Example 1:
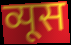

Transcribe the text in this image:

व्यूस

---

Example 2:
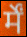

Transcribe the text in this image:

र्में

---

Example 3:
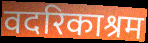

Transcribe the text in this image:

वदरिकाश्रम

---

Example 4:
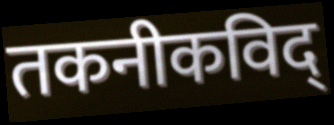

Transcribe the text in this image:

तकनीकविद्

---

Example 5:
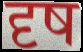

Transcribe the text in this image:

दृष